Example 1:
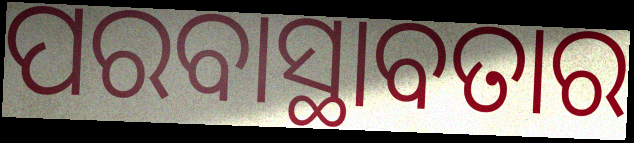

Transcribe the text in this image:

ପରବାସ୍ଥାବତାର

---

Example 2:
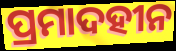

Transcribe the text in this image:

ପ୍ରମାଦହୀନ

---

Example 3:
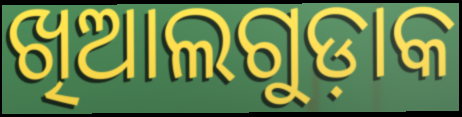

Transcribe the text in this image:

ଖିଆଲଗୁଡ଼ାକ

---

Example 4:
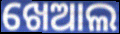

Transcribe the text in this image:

ଖେଆଲ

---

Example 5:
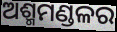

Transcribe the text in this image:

ଅଶ୍ମମଣ୍ଡଳର